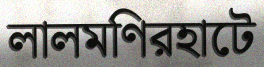
লালমণিরহাটে